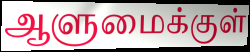
ஆளுமைக்குள்